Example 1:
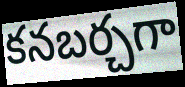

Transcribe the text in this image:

కనబర్చగా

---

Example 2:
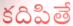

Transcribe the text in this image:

కదిపితే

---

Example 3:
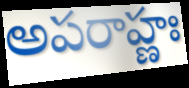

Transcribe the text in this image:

అపరాహ్ణః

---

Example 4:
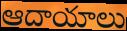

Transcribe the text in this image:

ఆదాయాలు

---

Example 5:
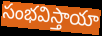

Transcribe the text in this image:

సంభవిస్తాయా